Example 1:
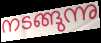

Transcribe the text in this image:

നടങ്ങുന്നു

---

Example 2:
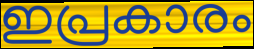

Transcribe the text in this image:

ഇപ്രകാരം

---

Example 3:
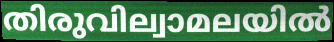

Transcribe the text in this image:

തിരുവില്വാമലയിൽ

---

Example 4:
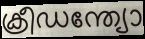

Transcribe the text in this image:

ക്രീഡന്ത്യോ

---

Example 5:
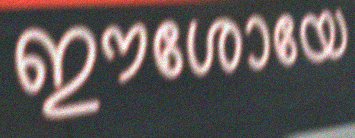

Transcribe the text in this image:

ഈശോയേ